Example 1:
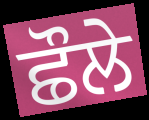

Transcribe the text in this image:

ਛੌਲੇ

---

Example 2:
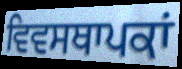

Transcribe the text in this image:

ਵਿਵਸਥਾਪਕਾਂ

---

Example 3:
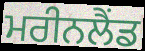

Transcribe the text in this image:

ਮਰੀਨਲੈਂਡ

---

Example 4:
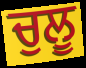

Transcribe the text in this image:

ਚੁਲੂ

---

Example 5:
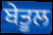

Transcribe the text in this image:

ਬੇਤੂਲ